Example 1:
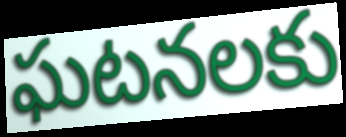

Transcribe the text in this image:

ఘటనలకు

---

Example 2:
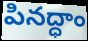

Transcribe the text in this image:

పినద్ధాం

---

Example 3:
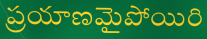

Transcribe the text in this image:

ప్రయాణమైపోయిరి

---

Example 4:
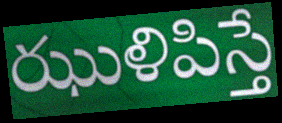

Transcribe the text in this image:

ఝుళిపిస్తే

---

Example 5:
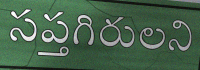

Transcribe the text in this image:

సప్తగిరులని